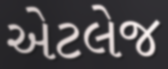
એટલેજ